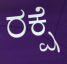
ರಕ್ಷೆ